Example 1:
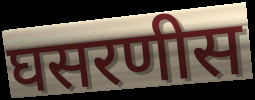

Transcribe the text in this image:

घसरणीस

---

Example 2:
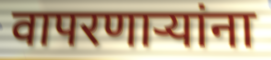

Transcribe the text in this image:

वापरणाऱ्यांना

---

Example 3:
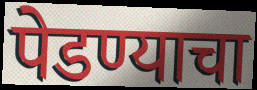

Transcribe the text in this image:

पेडण्याचा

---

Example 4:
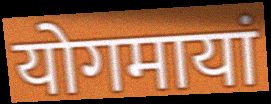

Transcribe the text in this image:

योगमायां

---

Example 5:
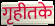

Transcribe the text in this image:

गृहीतके